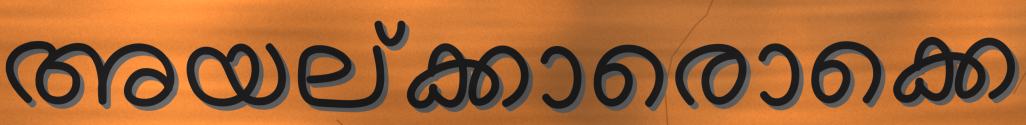
അയല്ക്കാരൊക്കെ